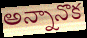
అన్నానొక